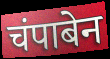
चंपाबेन